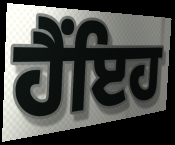
ਹੈਂਇਹ